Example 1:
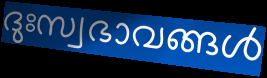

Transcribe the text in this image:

ദുഃസ്വഭാവങ്ങൾ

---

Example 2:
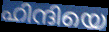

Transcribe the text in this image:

ഹിന്ദിയെ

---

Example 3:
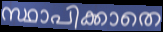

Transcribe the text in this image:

സ്ഥാപിക്കാതെ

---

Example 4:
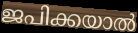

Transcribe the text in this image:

ജപിക്കയാൽ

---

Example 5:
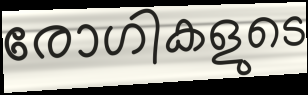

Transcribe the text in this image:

രോഗികളുടെ